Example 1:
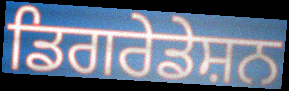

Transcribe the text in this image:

ਡਿਗਰੇਡੇਸ਼ਨ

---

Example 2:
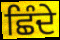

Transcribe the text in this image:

ਛਿੰਦੇ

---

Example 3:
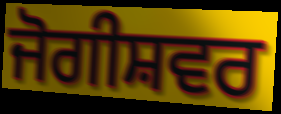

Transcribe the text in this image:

ਜੋਗੀਸ਼ਵਰ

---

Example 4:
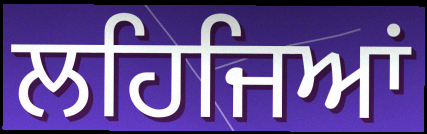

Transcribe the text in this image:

ਲਹਿਜਿਆਂ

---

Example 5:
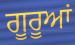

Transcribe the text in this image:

ਗੂਰੂਆਂ